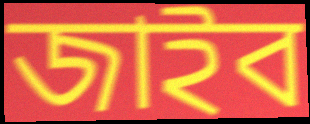
জাইব